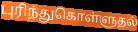
புரிந்துகொள்ளுதல்